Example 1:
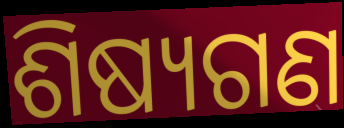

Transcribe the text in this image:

ଶିଷ୍ୟଗଣ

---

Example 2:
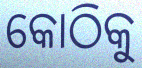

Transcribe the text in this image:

କୋଠିକୁ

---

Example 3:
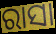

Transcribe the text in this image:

ରାସା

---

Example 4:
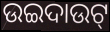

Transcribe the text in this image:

ଉଇଦାଉଟ୍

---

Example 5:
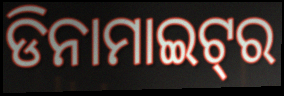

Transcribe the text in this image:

ଡିନାମାଇଟ୍‌ର